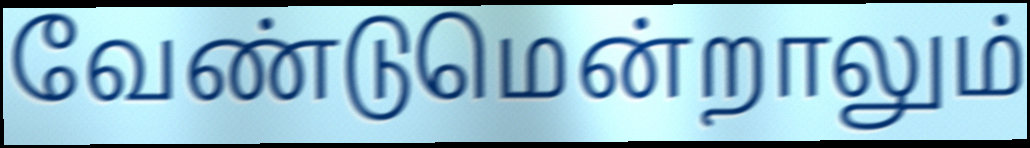
வேண்டுமென்றாலும்